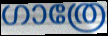
ഗാത്രേ